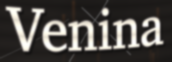
Venina